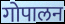
गोपालन